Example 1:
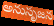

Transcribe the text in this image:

అనుసృజన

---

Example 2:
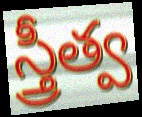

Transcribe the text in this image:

స్త్రీత్వ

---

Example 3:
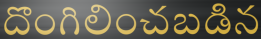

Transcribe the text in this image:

దొంగిలించబడిన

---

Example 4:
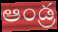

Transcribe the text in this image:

ఆండ్ర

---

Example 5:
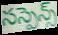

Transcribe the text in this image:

సస్పెన్స్